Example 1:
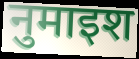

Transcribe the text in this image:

नुमाइश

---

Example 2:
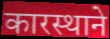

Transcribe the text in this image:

कारस्थाने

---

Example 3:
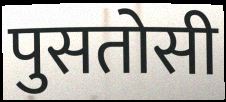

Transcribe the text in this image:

पुसतोसी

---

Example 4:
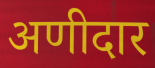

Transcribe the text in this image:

अणीदार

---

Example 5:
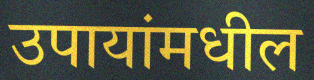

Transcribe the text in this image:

उपायांमधील